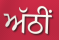
ਅੱਠੀਂ